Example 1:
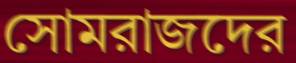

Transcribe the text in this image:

সোমরাজদের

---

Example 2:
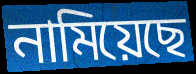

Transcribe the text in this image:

নামিয়েছে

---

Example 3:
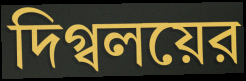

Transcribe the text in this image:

দিগ্বলয়ের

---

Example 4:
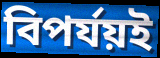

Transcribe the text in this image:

বিপর্যয়ই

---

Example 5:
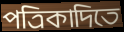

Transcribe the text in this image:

পত্রিকাদিতে